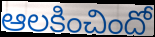
ఆలకించిందో